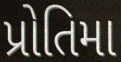
પ્રોતિમા